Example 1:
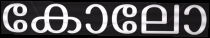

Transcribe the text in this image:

കോലോ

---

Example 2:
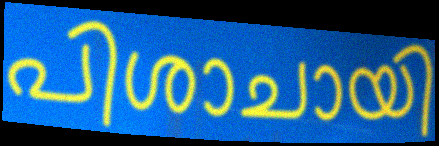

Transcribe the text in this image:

പിശാചായി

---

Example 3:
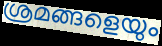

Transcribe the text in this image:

ശ്രമങ്ങളെയും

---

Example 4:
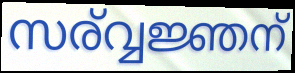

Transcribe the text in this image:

സര്വ്വജ്ഞന്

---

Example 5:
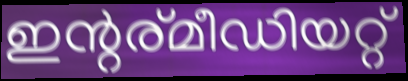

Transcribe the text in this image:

ഇന്റര്മീഡിയറ്റ്